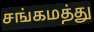
சங்கமத்து